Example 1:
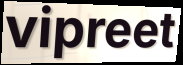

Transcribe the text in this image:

vipreet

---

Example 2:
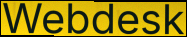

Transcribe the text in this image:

Webdesk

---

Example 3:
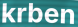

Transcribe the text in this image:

krben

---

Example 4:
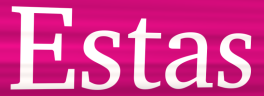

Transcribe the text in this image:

Estas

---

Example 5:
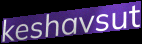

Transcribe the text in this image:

keshavsut